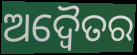
ଅଦ୍ଵୈତର